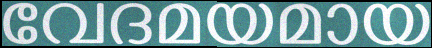
വേദമയമായ